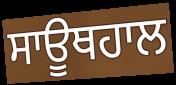
ਸਾਊਥਹਾਲ